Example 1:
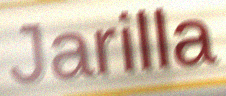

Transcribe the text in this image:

Jarilla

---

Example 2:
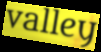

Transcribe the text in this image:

valley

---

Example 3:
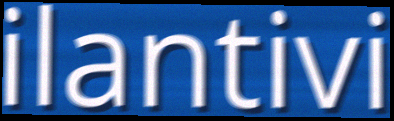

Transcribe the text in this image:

ilantivi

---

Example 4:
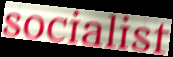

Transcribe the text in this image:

socialist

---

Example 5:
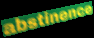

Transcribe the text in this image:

abstinence